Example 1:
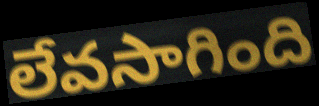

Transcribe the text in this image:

లేవసాగింది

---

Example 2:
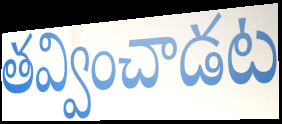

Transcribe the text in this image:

తవ్వించాడట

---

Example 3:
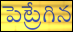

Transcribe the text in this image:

పెట్రేగిన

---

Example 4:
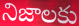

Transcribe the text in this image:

నిజాలకు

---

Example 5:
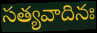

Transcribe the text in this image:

సత్యవాదినః